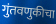
गुंतवणुकीचा